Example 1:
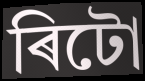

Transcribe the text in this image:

ৰিটো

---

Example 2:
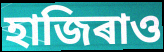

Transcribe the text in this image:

হাজিৰাও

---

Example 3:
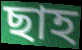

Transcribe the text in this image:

ছাহ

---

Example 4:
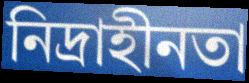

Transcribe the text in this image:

নিদ্ৰাহীনতা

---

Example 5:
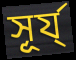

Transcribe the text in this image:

সূৰ্য্